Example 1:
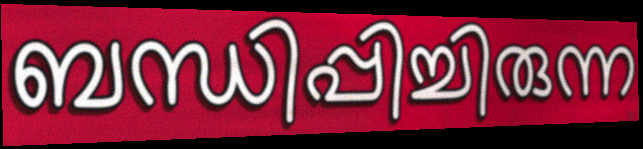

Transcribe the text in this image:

ബന്ധിപ്പിച്ചിരുന്ന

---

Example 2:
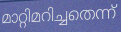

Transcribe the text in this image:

മാറ്റിമറിച്ചതെന്ന്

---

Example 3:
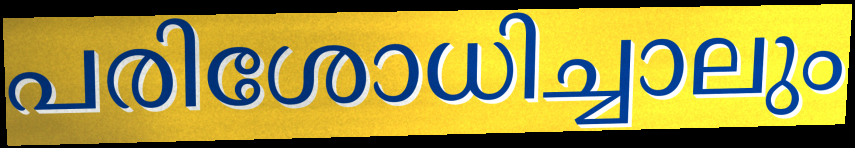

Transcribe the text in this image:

പരിശോധിച്ചാലും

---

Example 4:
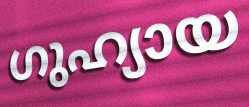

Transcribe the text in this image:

ഗുഹ്യായ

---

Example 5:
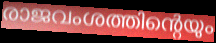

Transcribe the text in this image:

രാജവംശത്തിന്റെയും